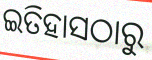
ଇତିହାସଠାରୁ